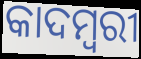
କାଦମ୍ବରୀ